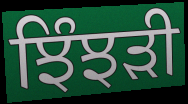
ਝਿੰਝੜੀ